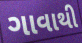
ગાવાથી